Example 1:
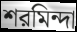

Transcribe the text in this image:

শরমিন্দা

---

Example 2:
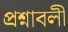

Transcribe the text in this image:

প্রশ্নাবলী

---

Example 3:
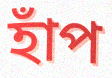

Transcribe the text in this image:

হাঁপ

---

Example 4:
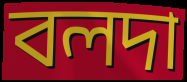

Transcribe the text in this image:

বলদা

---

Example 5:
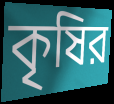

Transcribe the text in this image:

কৃষির